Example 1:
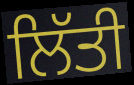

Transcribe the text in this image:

ਲਿੱਤੀ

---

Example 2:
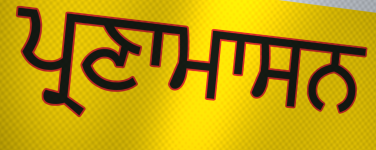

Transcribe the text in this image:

ਪ੍ਰਣਾਮਾਸਨ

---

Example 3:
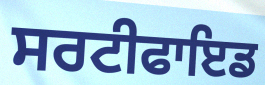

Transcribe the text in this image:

ਸਰਟੀਫਾਇਡ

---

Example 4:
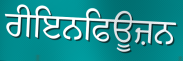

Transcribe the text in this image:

ਰੀਇਨਫਿਊਜ਼ਨ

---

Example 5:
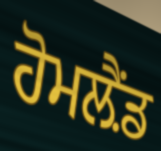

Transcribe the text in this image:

ਹੋਮਲ਼ੈਂਡ